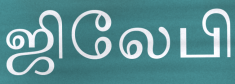
ஜிலேபி